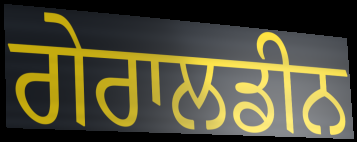
ਗੇਰਾਲਡੀਨ